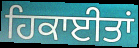
ਹਿਕਾਈਤਾਂ